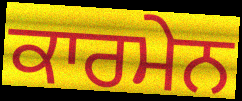
ਕਾਰਮੇਨ